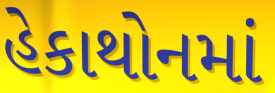
હેકાથોનમાં